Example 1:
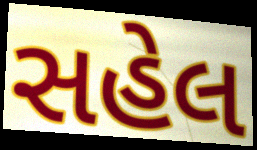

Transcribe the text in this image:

સહેલ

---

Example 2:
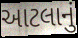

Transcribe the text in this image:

આટલાનું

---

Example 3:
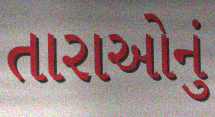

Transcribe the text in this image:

તારાઓનું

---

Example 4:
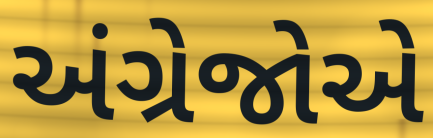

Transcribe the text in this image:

અંગ્રેજોએ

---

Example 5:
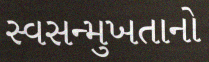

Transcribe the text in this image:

સ્વસન્મુખતાનો